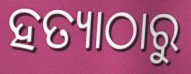
ହତ୍ୟାଠାରୁ